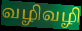
வழிவழி